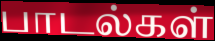
பாடல்கள்